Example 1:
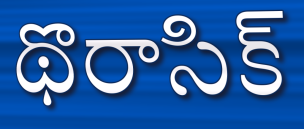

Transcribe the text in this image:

థొరాసిక్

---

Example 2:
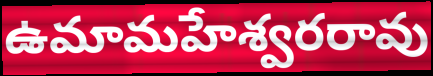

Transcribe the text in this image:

ఉమామహేశ్వరరావు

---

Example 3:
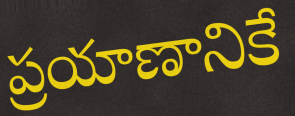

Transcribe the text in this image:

ప్రయాణానికే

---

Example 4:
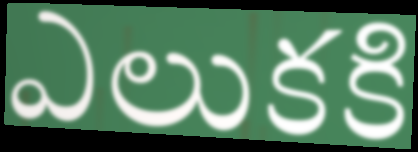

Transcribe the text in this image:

ఎలుకకి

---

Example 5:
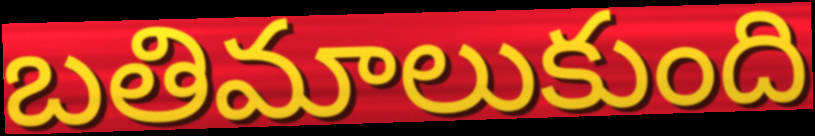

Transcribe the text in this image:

బతిమాలుకుంది